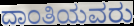
ದಾಂತಿಯವರು